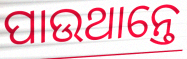
ପାଉଥାନ୍ତେ